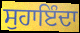
ਸੁਹਾਇੰਦਾ